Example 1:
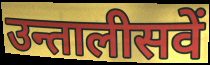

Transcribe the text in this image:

उन्तालीसवें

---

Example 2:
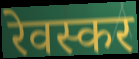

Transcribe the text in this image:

रेवस्कर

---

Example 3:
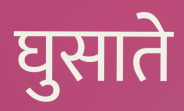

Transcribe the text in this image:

घुसाते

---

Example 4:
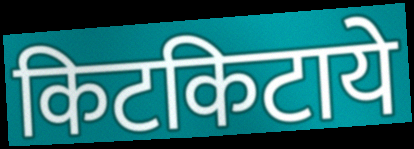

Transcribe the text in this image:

किटकिटाये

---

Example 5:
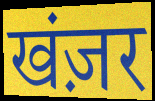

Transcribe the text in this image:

खंज़र